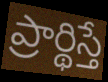
ప్రార్థిస్తే